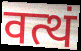
वत्थं